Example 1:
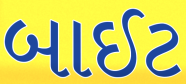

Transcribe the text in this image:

બાઈટ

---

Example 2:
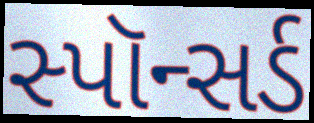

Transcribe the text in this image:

સ્પૉન્સર્ડ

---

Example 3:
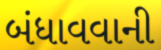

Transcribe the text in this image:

બંધાવવાની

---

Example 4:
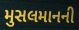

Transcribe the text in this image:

મુસલમાનની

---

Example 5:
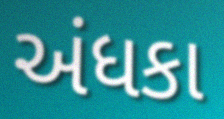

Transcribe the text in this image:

અંધકા